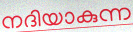
നദിയാകുന്ന